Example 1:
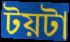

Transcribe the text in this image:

টয়টা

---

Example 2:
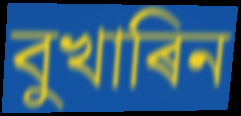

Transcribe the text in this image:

বুখাৰিন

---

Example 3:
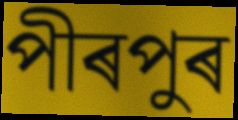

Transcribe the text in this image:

পীৰপুৰ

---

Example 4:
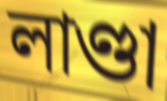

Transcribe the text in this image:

লাণ্ডা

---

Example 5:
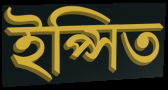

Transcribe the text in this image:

ইপ্সিত